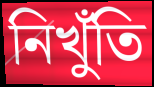
নিখুঁতি